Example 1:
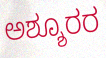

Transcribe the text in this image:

ಅಶ್ಶೂರರ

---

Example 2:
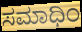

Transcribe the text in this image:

ಸಮಾಧಿಂ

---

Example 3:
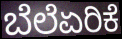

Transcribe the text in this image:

ಬೆಲೆಏರಿಕೆ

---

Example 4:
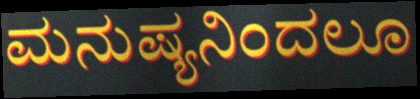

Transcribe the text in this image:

ಮನುಷ್ಯನಿಂದಲೂ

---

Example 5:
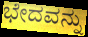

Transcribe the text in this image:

ಭೇದವನ್ನು